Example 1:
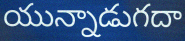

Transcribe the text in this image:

యున్నాడుగదా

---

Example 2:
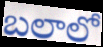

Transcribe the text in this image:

బలాలో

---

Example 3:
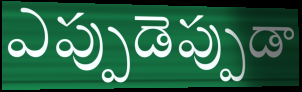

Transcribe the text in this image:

ఎప్పుడెప్పుడా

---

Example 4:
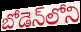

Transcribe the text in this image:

బోడెన్‌లోని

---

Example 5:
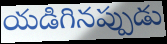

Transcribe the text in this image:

యడిగినప్పుడు